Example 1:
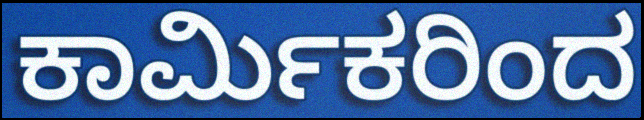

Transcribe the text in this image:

ಕಾರ್ಮಿಕರಿಂದ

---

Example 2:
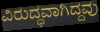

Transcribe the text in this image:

ವಿರುದ್ಧವಾಗಿದ್ದವು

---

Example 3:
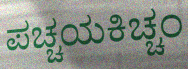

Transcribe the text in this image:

ಪಚ್ಚಯಕಿಚ್ಚಂ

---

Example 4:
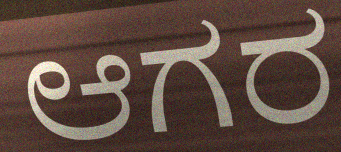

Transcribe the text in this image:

ಆಗರ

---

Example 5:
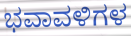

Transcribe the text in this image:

ಭವಾವಳಿಗಳ